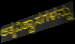
ಆತ್ಮವಿಶ್ವಾಸಗಳನ್ನು